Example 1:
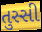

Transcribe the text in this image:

તુસ્સી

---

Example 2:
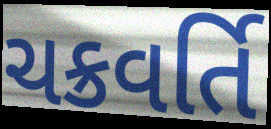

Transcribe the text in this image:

ચક્રવર્તિ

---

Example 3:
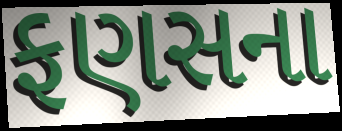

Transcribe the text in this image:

ફણસના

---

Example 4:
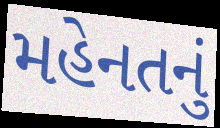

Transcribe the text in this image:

મહેનતનું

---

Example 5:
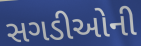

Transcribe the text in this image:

સગડીઓની